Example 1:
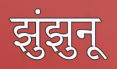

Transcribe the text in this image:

झुंझुनू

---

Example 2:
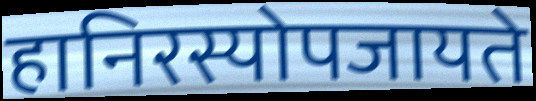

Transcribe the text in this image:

हानिरस्योपजायते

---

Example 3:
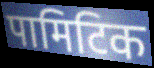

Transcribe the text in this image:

पामिटिक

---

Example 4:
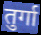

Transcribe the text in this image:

तुर्गा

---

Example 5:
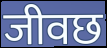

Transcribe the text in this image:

जीवछ